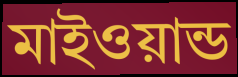
মাইওয়ান্ড